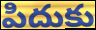
పిదుకు